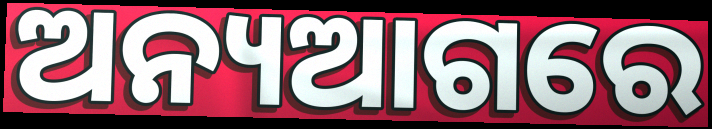
ଅନ୍ୟଆଗରେ